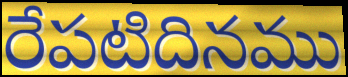
రేపటిదినము